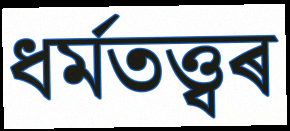
ধৰ্মতত্ত্বৰ